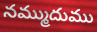
నమ్ముదుము